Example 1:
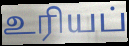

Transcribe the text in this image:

உரியப்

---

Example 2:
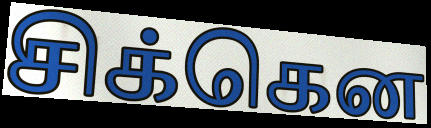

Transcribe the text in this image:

சிக்கென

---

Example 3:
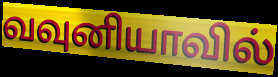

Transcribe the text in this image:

வவுனியாவில்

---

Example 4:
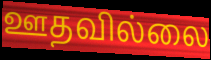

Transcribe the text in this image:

ஊதவில்லை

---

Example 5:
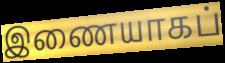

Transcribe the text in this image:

இணையாகப்